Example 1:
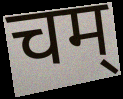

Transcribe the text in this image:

चम्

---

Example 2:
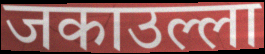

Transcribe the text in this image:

जकाउल्ला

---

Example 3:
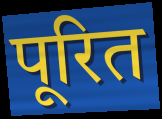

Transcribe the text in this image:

पूरित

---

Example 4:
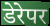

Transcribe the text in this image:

डेरेपर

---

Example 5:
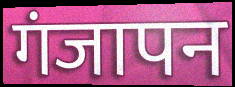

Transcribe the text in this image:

गंजापन